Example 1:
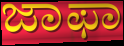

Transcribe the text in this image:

ಜಾಫಾ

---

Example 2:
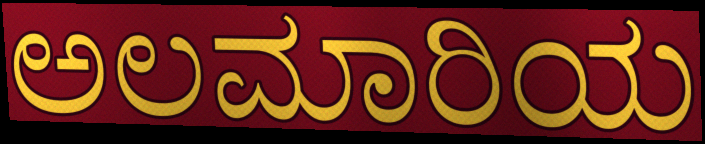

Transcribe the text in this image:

ಅಲಮಾರಿಯ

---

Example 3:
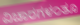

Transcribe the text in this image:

ವಿಚಾರಗಳಂತೂ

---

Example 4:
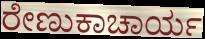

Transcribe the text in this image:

ರೇಣುಕಾಚಾರ್ಯ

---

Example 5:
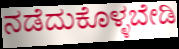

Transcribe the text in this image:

ನಡೆದುಕೊಳ್ಳಬೇಡಿ